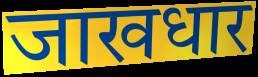
जाखधार